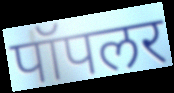
पॉपलर